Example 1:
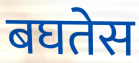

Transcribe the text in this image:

बघतेस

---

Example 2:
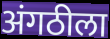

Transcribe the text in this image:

अंगठीला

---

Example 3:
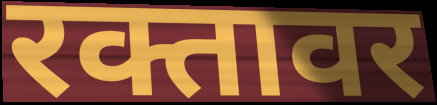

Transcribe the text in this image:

रक्तावर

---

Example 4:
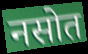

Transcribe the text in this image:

नसोत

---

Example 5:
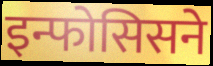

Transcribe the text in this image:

इन्फोसिसने